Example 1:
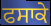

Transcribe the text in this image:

ਫਸਾਕੇ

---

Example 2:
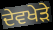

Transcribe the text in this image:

ਦੇਵਖੇੜੇ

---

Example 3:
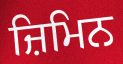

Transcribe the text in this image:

ਜ਼ਿਮਿਨ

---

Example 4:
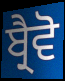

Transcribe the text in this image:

ਬ੍ਰੈਵੋ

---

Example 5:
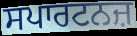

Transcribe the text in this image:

ਸਪਾਰਟਨਜ਼